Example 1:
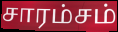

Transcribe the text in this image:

சாரம்சம்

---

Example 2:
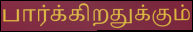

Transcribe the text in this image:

பார்க்கிறதுக்கும்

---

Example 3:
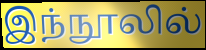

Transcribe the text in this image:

இந்நூலில்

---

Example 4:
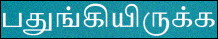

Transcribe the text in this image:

பதுங்கியிருக்க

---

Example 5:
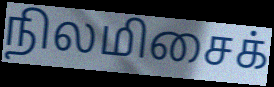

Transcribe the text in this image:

நிலமிசைக்